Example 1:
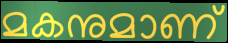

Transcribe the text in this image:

മകനുമാണ്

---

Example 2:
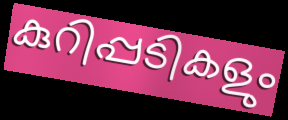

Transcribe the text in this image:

കുറിപ്പടികളും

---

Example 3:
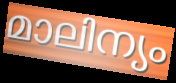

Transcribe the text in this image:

മാലിന്യം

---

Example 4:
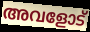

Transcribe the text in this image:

അവളോട്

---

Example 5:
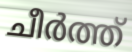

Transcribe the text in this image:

ചീർത്ത്